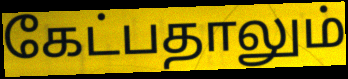
கேட்பதாலும்